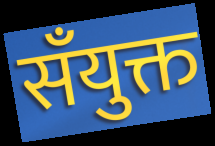
सँयुक्त